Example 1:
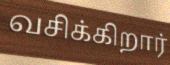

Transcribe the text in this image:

வசிக்கிறார்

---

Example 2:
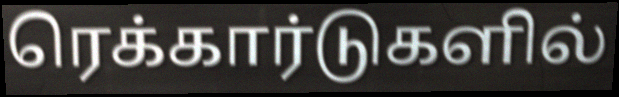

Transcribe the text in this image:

ரெக்கார்டுகளில்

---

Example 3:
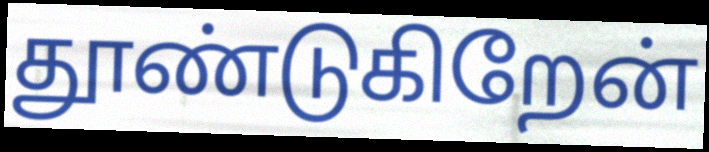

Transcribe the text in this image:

தூண்டுகிறேன்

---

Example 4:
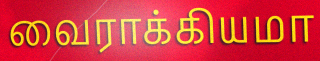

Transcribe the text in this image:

வைராக்கியமா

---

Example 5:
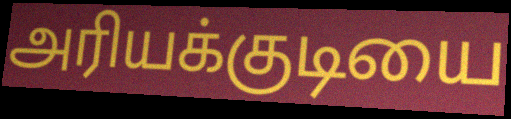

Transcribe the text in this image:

அரியக்குடியை